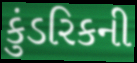
કુંડરિકની